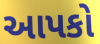
આપકો